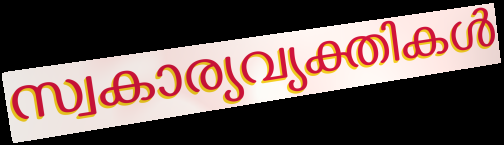
സ്വകാര്യവ്യക്തികൾ